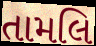
તામલિ